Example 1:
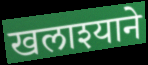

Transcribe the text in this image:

खलाश्याने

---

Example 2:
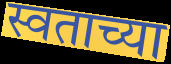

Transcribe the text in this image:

स्वताच्या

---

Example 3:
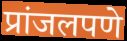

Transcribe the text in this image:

प्रांजलपणे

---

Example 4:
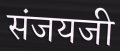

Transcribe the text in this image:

संजयजी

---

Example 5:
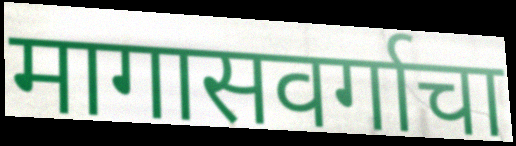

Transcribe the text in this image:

मागासवर्गाचा